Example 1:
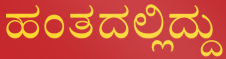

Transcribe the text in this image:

ಹಂತದಲ್ಲಿದ್ದು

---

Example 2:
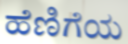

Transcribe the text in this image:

ಹೆಣಿಗೆಯ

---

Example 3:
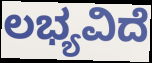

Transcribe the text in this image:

ಲಭ್ಯವಿದೆ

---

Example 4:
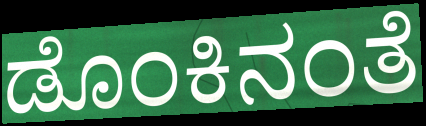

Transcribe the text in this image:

ಡೊಂಕಿನಂತೆ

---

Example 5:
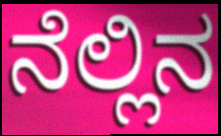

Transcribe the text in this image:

ನೆಲ್ಲಿನ